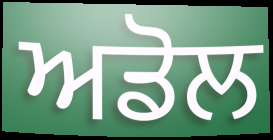
ਅਡੋਲ